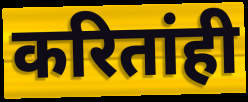
करितांही